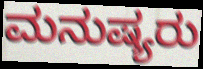
ಮನುಷ್ಯರು